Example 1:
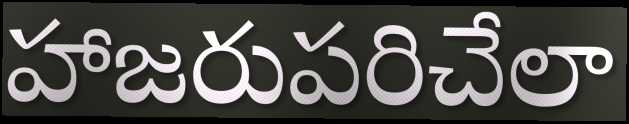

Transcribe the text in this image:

హాజరుపరిచేలా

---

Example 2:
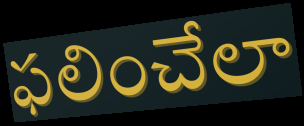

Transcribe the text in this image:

ఫలించేలా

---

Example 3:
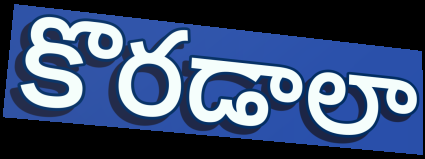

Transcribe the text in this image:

కొరడాలా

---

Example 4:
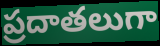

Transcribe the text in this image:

ప్రదాతలుగా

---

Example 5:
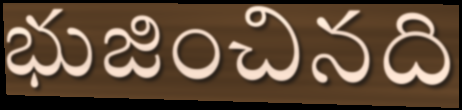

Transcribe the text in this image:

భుజించినది